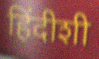
हिंदीशी